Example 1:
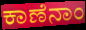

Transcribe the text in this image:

ಕಾಣೆನಾಂ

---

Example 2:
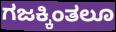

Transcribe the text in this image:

ಗಜಕ್ಕಿಂತಲೂ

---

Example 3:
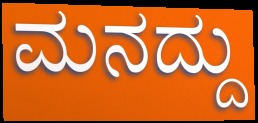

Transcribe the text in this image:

ಮನದ್ದು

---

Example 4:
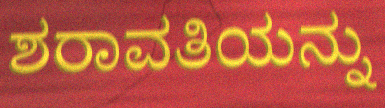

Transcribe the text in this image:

ಶರಾವತಿಯನ್ನು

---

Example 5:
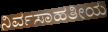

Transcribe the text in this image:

ನಿರ್ವಸಾಹತೀಯ